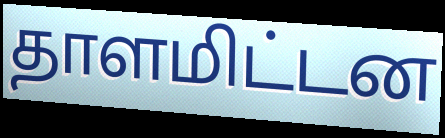
தாளமிட்டன